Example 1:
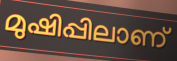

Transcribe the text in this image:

മുഷിപ്പിലാണ്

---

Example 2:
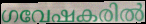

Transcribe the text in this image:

ഗവേഷകരിൽ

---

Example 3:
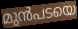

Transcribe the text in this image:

മുൻപടയെ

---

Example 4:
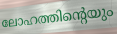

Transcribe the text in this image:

ലോഹത്തിന്റെയും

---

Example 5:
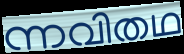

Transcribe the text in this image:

ന്നവിതഥ